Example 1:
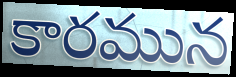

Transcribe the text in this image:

కారమున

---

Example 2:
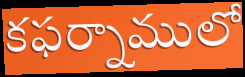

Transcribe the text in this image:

కఫర్నాములో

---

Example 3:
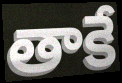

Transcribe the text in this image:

తాకే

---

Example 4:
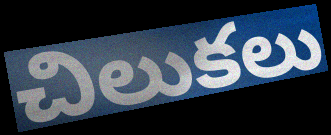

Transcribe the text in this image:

చిలుకలు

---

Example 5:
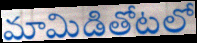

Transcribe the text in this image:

మామిడితోటలో